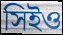
সিইও